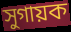
সুগায়ক